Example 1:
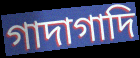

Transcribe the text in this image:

গাদাগাদি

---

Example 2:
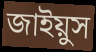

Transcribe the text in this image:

জাইয়ুস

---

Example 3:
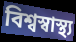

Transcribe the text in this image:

বিশ্বস্বাস্থ্য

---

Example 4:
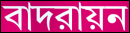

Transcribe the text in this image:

বাদরায়ন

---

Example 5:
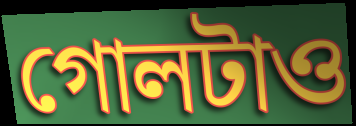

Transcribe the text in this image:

গোলটাও